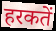
हरकतें